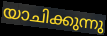
യാചിക്കുന്നു